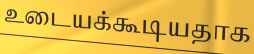
உடையக்கூடியதாக